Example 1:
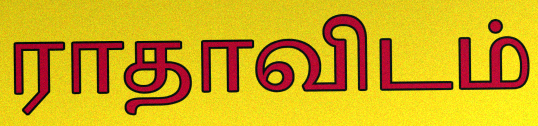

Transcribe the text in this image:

ராதாவிடம்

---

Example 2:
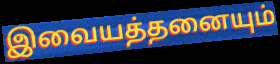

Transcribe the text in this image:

இவையத்தனையும்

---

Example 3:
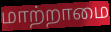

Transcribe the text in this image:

மாற்றாமை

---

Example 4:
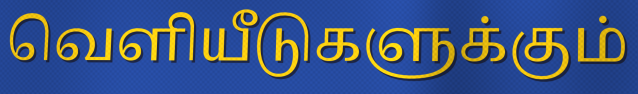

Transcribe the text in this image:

வெளியீடுகளுக்கும்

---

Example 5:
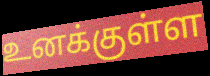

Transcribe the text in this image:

உனக்குள்ள